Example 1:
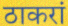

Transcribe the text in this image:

ठाकरां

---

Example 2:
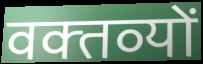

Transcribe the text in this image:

वक्‍तव्‍यों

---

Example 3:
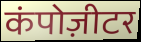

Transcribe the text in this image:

कंपोज़ीटर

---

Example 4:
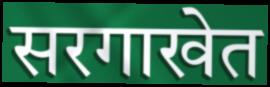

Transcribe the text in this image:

सरगाखेत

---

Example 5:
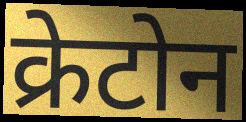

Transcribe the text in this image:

क्रेटोन